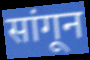
सांगून